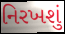
નિરખશું